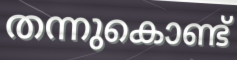
തന്നുകൊണ്ട്